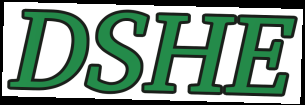
DSHE